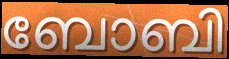
ബോബി